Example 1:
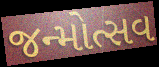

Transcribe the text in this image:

જન્મોત્સવ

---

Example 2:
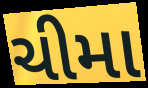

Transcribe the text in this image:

ચીમા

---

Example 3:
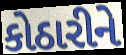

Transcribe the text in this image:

કોઠારીને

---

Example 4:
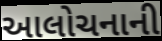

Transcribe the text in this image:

આલોચનાની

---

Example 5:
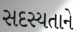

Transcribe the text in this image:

સદસ્યતાને